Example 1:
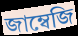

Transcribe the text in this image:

জাম্বেজি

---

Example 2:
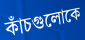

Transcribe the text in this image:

কাঁচগুলোকে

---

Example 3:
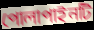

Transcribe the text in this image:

পোলাপাইনটি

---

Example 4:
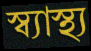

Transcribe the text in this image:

স্ব্যাস্থ্য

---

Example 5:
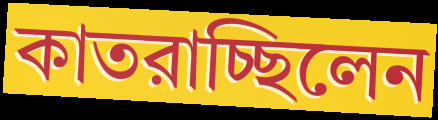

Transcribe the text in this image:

কাতরাচ্ছিলেন